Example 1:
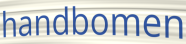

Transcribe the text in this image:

handbomen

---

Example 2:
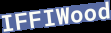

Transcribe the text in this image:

IFFIWood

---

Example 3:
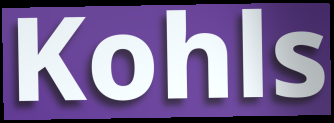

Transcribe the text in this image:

Kohls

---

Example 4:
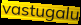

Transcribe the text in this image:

vastugalu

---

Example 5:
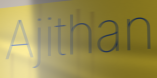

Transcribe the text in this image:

Ajithan